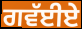
ਗਵੱਈਏ